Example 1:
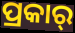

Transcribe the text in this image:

ପ୍ରକାର୍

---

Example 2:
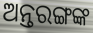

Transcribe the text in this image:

ଅନ୍ତରଙ୍ଗଙ୍କ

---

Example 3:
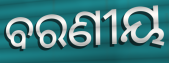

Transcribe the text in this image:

ବରଣୀୟ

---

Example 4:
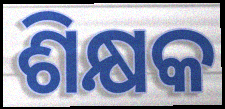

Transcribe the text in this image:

ଶିକ୍ଷକ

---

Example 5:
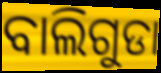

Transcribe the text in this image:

ବାଲିଗୁଡା